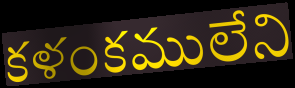
కళంకములేని